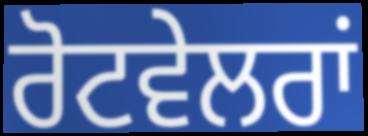
ਰੋਟਵੇਲਰਾਂ